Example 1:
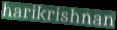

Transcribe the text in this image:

harikrishnan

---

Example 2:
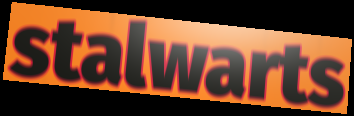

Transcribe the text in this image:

stalwarts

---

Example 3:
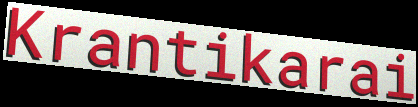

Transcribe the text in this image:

Krantikarai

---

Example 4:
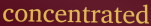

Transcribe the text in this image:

concentrated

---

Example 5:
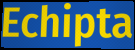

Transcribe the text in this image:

Echipta